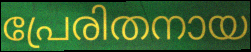
പ്രേരിതനായ